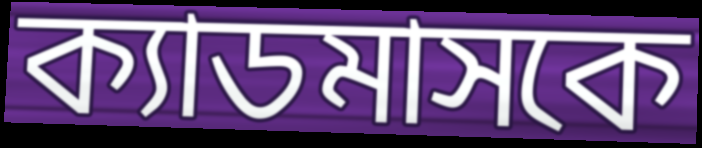
ক্যাডমাসকে